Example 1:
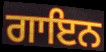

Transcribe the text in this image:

ਗਾਇਨ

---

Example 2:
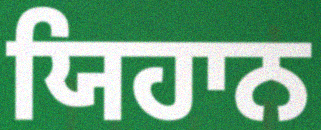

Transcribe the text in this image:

ਯਿਹਾਨ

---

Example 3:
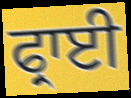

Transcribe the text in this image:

ਫ੍ਰਾਈ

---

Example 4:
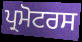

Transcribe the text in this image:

ਪ੍ਰਮੋਟਰਸ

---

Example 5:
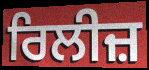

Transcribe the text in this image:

ਰਿਲੀਜ਼